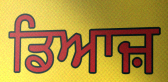
ਡਿਆਜ਼